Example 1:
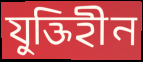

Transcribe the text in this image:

যুক্তিহীন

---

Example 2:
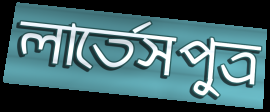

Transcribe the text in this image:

লার্তেসপুত্র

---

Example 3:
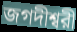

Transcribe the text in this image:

জগদীশ্বরী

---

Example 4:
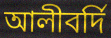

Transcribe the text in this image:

আলীবর্দি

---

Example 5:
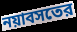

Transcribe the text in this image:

নয়াবসতের